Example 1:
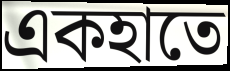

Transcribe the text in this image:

একহাতে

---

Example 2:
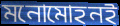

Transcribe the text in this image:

মনোমোহনই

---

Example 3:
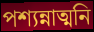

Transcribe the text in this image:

পশ্যন্নাত্মনি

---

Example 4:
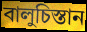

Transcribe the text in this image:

বালুচিস্তান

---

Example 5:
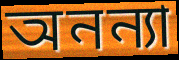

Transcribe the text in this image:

অনন্যা